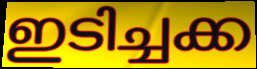
ഇടിച്ചക്ക